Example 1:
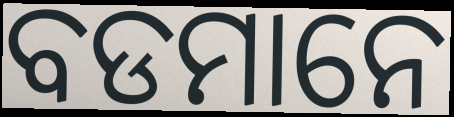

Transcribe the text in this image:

ବଡମାନେ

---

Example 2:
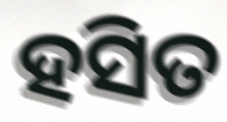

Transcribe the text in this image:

ହସିତ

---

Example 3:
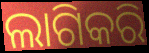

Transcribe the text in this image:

ଲାଗିକରି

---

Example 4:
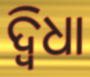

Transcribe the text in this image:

ଦ୍ୱିଧା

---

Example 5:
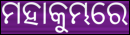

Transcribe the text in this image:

ମହାକୁମ୍ଭରେ